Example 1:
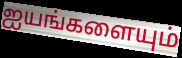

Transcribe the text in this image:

ஐயங்களையும்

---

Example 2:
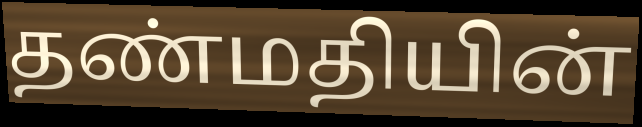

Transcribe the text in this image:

தண்மதியின்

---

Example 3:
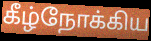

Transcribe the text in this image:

கீழ்நோக்கிய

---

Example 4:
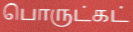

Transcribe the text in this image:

பொருட்கட்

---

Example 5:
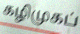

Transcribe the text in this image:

கழிமுகப்